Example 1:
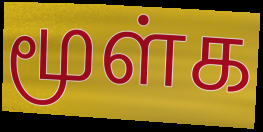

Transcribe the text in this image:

மூள்க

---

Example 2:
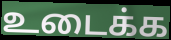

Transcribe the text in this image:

உடைக்க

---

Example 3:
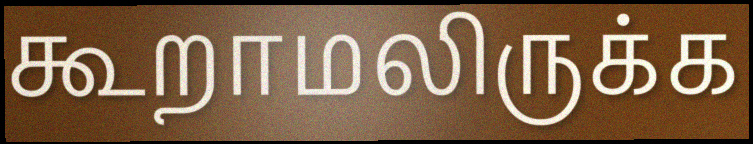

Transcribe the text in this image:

கூறாமலிருக்க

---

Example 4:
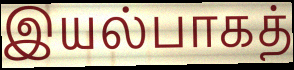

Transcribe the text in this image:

இயல்பாகத்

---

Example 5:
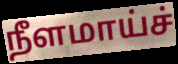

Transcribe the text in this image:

நீளமாய்ச்